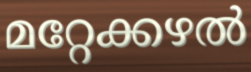
മറ്റേക്കഴൽ